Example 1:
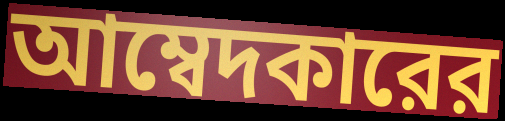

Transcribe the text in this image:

আম্বেদকারের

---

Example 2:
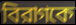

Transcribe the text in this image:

বিরাগকে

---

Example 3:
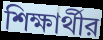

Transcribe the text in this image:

শিক্ষার্থীর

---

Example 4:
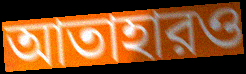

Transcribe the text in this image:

আতাহারও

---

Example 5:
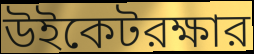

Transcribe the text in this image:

উইকেটরক্ষার